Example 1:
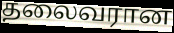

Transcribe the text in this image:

தலைவரான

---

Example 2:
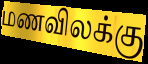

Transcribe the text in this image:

மணவிலக்கு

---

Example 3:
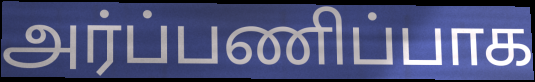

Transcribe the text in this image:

அர்ப்பணிப்பாக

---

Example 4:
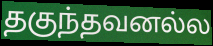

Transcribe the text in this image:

தகுந்தவனல்ல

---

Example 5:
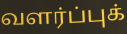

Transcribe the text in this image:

வளர்ப்புக்